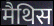
मैथिस